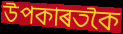
উপকাৰতকৈ